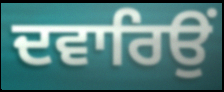
ਦਵਾਰਿਉਂ